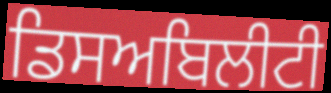
ਡਿਸਅਬਿਲੀਟੀ